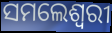
ସମଲେଶ୍ୱରୀ